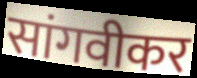
सांगवीकर